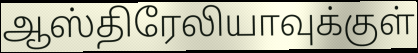
ஆஸ்திரேலியாவுக்குள்